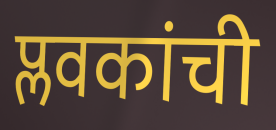
प्लवकांची